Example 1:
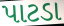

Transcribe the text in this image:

પાટડા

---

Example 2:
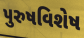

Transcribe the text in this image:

પુરુષવિશેષ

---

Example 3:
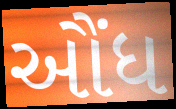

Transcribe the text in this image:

ઔંધ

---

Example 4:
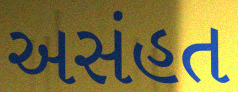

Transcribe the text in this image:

અસંહત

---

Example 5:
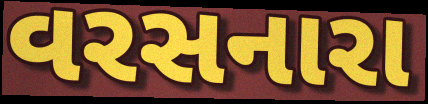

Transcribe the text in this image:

વરસનારા